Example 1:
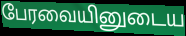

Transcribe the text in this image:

பேரவையினுடைய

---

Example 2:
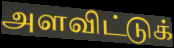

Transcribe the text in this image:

அளவிட்டுக்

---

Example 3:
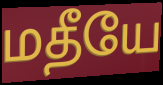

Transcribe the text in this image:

மதீயே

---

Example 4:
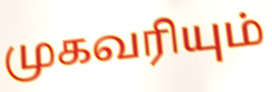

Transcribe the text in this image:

முகவரியும்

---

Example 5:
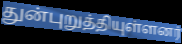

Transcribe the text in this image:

துன்புறுத்தியுள்ளனர்